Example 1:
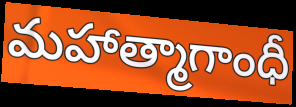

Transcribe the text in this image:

మహాత్మాగాంధీ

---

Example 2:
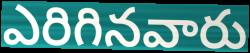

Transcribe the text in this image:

ఎరిగినవారు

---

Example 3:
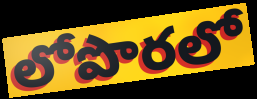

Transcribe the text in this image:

లోపొరలో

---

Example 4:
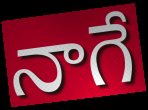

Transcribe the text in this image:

నాగే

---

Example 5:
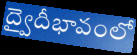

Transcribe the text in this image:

ద్వైదీభావంలో